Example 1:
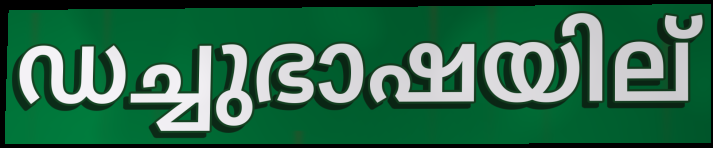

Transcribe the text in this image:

ഡച്ചുഭാഷയില്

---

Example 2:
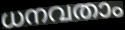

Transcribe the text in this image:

ധനവതാം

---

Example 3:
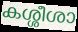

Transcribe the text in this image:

കശ്ശീശാ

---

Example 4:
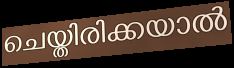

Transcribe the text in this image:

ചെയ്തിരിക്കയാൽ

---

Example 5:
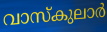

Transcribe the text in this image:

വാസ്കുലാർ